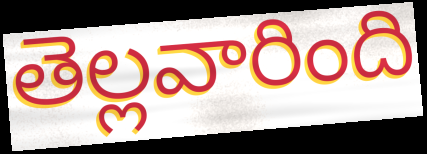
తెల్లవారింది